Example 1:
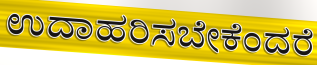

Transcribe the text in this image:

ಉದಾಹರಿಸಬೇಕೆಂದರೆ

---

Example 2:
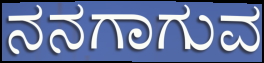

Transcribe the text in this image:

ನನಗಾಗುವ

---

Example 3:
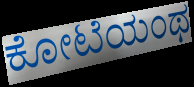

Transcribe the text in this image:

ಕೋಟೆಯಂಥ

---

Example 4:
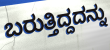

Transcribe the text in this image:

ಬರುತ್ತಿದ್ದದನ್ನು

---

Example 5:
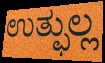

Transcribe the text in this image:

ಉತ್ಫುಲ್ಲ